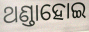
ଥଣ୍ଡାହୋଇ